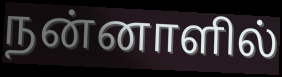
நன்னாளில்